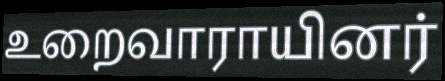
உறைவாராயினர்